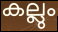
കല്ലും